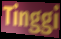
Tinggi